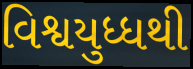
વિશ્વયુધ્ધથી